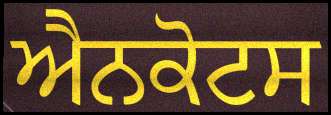
ਐਨਕੋਟਸ